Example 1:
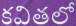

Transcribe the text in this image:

కవితలో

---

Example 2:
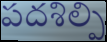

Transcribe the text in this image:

పదశిల్పి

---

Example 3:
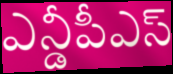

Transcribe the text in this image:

ఎన్డీపీఎస్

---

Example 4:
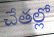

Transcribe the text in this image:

చేతల్లో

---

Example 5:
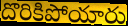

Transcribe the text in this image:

దొరికిపోయారు